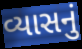
વ્યાસનું